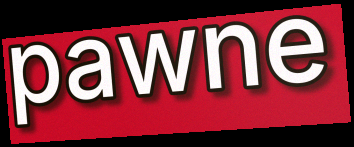
pawne